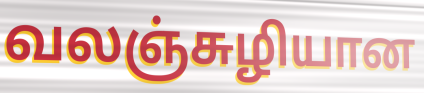
வலஞ்சுழியான